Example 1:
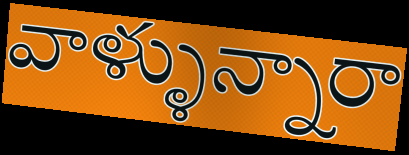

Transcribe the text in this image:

వాళ్ళున్నారా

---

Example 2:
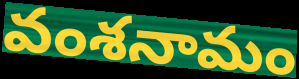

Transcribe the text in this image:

వంశనామం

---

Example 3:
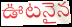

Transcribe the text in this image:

ఊటనైన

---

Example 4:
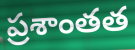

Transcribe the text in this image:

ప్రశాంతత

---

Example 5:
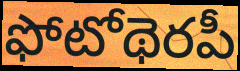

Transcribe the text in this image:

ఫోటోథెరపీ